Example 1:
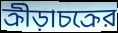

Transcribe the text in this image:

ক্রীড়াচক্রের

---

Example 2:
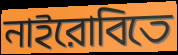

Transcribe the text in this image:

নাইরোবিতে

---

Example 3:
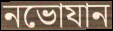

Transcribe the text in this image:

নভোযান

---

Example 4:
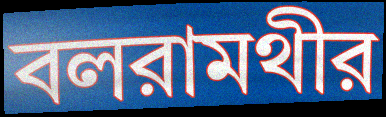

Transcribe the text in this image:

বলরামথীর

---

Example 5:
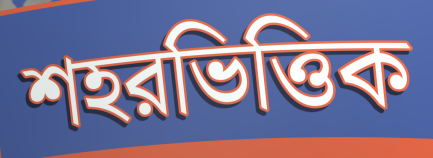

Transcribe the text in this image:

শহরভিত্তিক